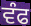
ਵੰਫ